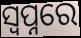
ସ୍ୱପ୍ନରେ